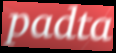
padta